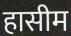
हासीम